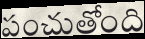
పంచుతోంది